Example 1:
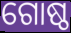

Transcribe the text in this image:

ଗୋଷ୍ଠ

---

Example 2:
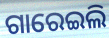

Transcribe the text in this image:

ଗାରେଇଲି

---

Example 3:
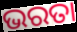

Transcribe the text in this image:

ଭରତା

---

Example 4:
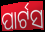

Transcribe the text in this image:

ପାର୍ଟସ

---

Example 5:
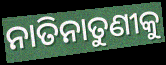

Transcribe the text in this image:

ନାତିନାତୁଣୀକୁ